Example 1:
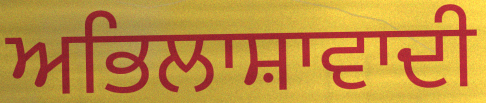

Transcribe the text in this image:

ਅਭਿਲਾਸ਼ਾਵਾਦੀ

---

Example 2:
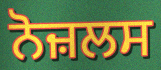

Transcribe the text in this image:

ਨੋਜ਼ਲਸ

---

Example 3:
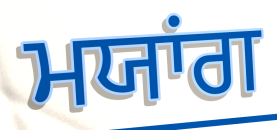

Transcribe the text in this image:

ਮਯਾਂਗ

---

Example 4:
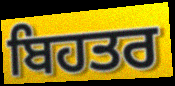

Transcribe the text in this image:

ਬਿਹਤਰ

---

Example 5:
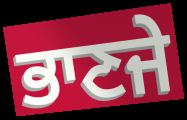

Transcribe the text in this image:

ਭਾਣਜੇ